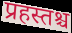
प्रहस्तश्च